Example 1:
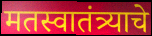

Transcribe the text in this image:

मतस्वातंत्र्याचे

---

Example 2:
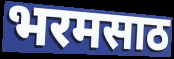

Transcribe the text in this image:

भरमसाठ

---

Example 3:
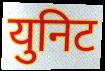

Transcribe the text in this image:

युनिट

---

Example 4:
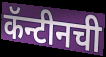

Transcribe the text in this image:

कॅन्टीनची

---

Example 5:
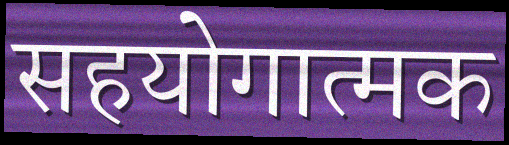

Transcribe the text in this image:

सहयोगात्मक